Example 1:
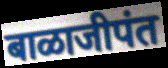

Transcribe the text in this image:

बाळाजीपंत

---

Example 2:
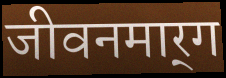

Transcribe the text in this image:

जीवनमार्ग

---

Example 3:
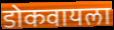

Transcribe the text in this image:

डोकवायला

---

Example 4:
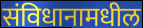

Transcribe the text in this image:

संविधानामधील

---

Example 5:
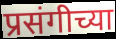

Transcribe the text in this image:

प्रसंगीच्या